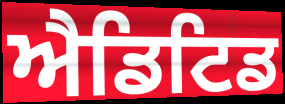
ਐਡਿਟਿਡ